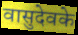
वासुदेवके